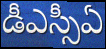
డీఎస్సీఏ